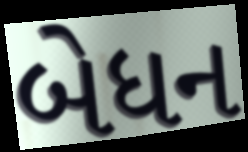
બેધન